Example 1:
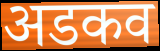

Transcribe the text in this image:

अडकव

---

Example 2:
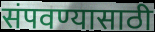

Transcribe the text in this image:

संपवण्यासाठी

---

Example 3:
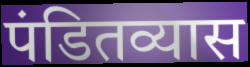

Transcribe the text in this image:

पंडितव्यास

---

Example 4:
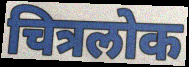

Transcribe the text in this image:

चित्रलोक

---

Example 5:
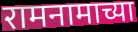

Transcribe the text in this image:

रामनामाच्या